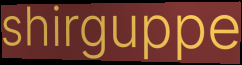
shirguppe